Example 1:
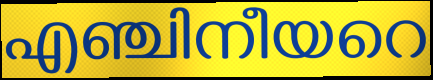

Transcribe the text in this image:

എഞ്ചിനീയറെ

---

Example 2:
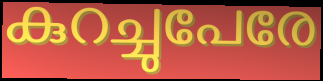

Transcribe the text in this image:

കുറച്ചുപേരേ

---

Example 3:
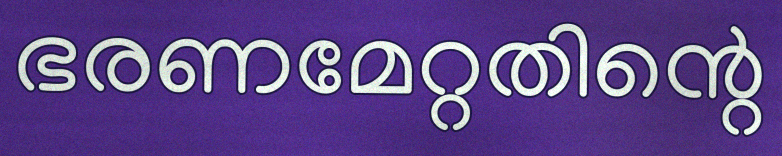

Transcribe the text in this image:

ഭരണമേറ്റതിന്റെ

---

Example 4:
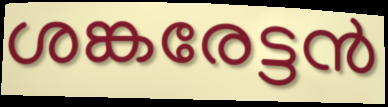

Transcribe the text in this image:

ശങ്കരേട്ടൻ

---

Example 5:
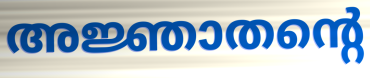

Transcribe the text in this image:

അജ്ഞാതന്റെ